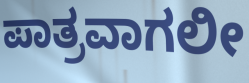
ಪಾತ್ರವಾಗಲೀ